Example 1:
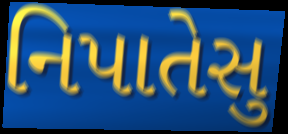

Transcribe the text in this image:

નિપાતેસુ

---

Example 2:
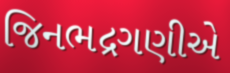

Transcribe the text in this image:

જિનભદ્રગણીએ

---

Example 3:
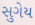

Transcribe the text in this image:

સુગેય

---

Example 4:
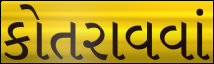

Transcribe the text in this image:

કોતરાવવાં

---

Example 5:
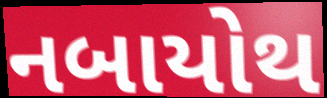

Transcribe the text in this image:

નબાયોથ